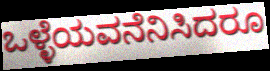
ಒಳ್ಳೆಯವನೆನಿಸಿದರೂ